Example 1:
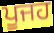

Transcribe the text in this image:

ਪੂਜਹ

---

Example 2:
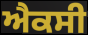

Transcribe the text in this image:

ਐਕਸੀ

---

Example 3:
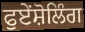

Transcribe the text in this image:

ਫੁਏਂਸ਼ੋਲਿੰਗ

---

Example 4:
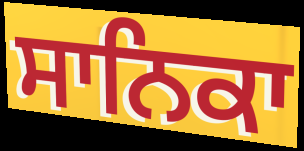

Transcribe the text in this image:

ਸਾਨਿਕਾ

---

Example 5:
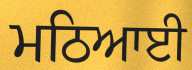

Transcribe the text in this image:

ਮਠਿਆਈ